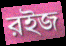
রইজ